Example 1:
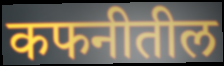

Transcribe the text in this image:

कफनीतील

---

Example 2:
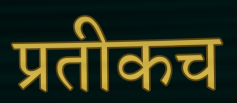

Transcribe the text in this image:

प्रतीकच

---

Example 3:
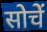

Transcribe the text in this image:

सोचें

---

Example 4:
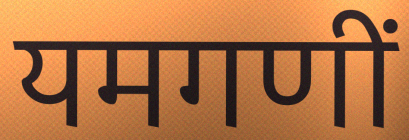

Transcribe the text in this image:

यमगणीं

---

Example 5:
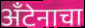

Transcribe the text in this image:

अँटेनाचा